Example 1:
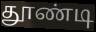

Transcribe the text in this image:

தூண்டி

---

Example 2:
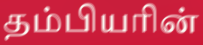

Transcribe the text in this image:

தம்பியரின்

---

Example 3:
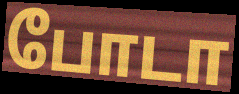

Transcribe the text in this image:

போடா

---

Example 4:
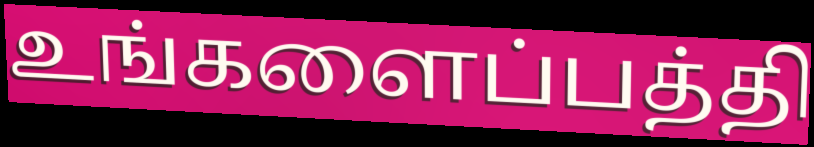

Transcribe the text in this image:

உங்களைப்பத்தி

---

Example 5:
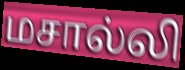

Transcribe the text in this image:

மசால்லி